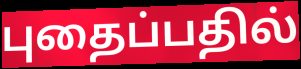
புதைப்பதில்